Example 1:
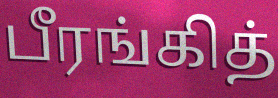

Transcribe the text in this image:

பீரங்கித்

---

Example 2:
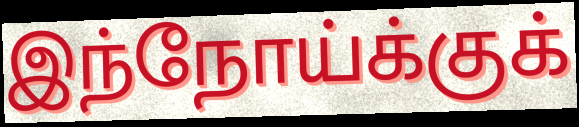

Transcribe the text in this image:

இந்நோய்க்குக்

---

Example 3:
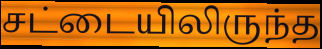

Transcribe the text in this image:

சட்டையிலிருந்த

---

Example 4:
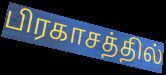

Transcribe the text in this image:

பிரகாசத்தில்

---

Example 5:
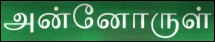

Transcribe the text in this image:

அன்னோருள்